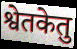
श्वेतकेतु